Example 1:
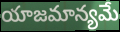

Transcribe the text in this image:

యాజమాన్యమే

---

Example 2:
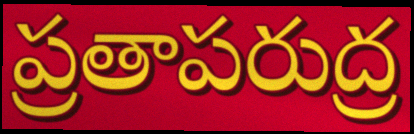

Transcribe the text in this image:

ప్రతాపరుద్ర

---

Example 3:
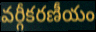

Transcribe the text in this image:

వర్గీకరణీయం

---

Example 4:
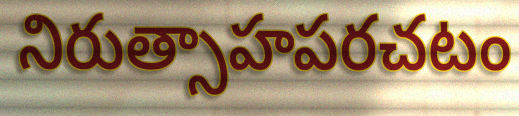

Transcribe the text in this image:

నిరుత్సాహపరచటం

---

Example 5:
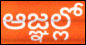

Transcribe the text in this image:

ఆజ్ఞల్లో